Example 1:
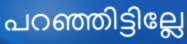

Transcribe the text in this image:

പറഞ്ഞിട്ടില്ലേ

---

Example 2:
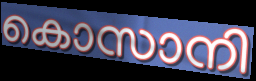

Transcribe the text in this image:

കൊസാനി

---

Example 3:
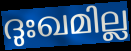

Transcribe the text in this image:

ദുഃഖമില്ല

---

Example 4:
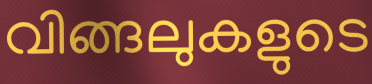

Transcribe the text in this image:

വിങ്ങലുകളുടെ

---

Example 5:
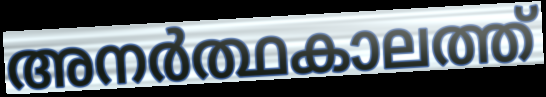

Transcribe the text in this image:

അനർത്ഥകാലത്ത്